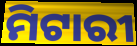
ମିଟାରୀ